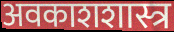
अवकाशशास्त्र